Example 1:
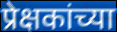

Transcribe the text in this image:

प्रेक्षकांच्या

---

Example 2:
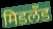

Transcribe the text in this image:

मिडलँड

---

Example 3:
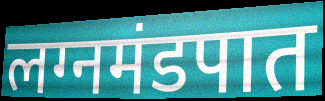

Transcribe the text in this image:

लग्नमंडपात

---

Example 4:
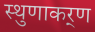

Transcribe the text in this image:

स्थुणाकर्ण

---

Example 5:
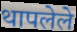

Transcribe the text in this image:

थापलेले